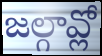
జల్గావ్లో